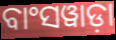
ବାଂସୱାଡ଼ା